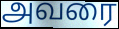
அவரை